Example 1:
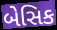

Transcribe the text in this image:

બેસિક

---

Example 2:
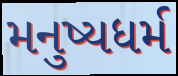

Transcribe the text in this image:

મનુષ્યધર્મ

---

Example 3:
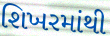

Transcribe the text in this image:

શિખરમાંથી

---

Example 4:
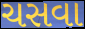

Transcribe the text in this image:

ચસવા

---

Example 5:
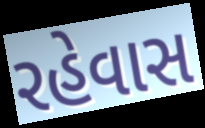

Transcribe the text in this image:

રહેવાસ